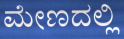
ಮೇಣದಲ್ಲಿ